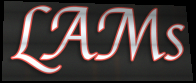
LAMs